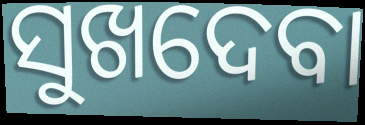
ସୁଖଦେବା